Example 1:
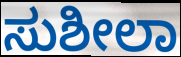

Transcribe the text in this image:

ಸುಶೀಲಾ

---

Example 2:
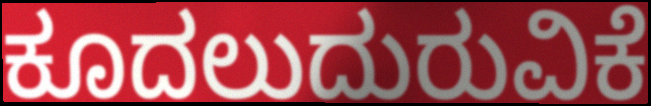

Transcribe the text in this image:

ಕೂದಲುದುರುವಿಕೆ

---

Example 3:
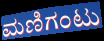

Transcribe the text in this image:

ಮಣಿಗಂಟು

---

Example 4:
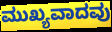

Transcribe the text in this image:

ಮುಖ್ಯವಾದವು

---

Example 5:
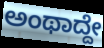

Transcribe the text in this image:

ಅಂಥಾದ್ದೇ